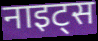
नाइट्स